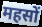
महसों